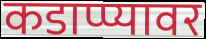
कडाप्प्यावर